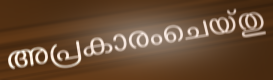
അപ്രകാരംചെയ്തു